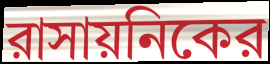
রাসায়নিকের